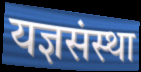
यज्ञसंस्था